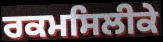
ਰਕਮਸਿਲੀਕੇ